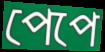
পেপে